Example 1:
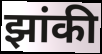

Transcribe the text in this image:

झांकी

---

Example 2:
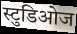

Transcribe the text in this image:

स्टुडिओज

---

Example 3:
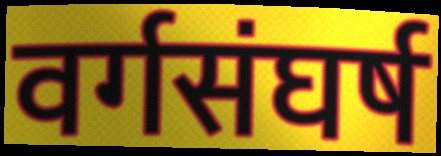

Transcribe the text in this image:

वर्गसंघर्ष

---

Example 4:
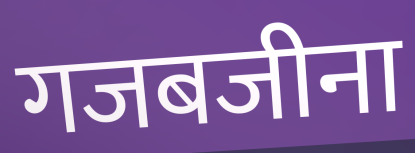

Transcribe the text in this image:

गजबजीना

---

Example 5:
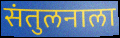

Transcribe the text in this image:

संतुलनाला